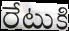
రేటుకి